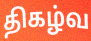
திகழ்வ